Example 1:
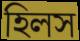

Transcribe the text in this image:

হিলস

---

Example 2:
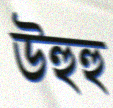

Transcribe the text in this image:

উহুহু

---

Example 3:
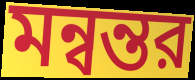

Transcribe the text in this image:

মন্বন্তর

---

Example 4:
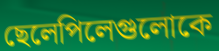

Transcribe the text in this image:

ছেলেপিলেগুলোকে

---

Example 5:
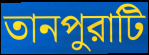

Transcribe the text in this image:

তানপুরাটি